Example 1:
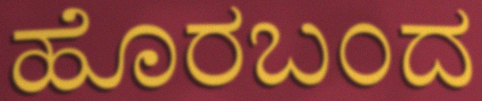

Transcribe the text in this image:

ಹೊರಬಂದ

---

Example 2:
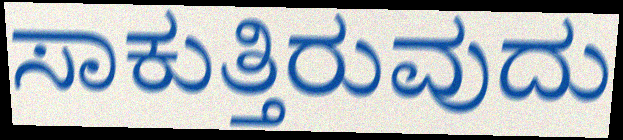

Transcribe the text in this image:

ಸಾಕುತ್ತಿರುವುದು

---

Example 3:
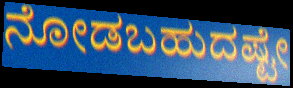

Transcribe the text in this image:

ನೋಡಬಹುದಷ್ಟೇ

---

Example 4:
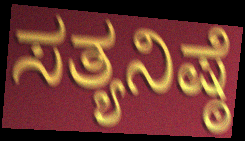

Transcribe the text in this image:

ಸತ್ಯನಿಷ್ಠೆ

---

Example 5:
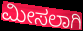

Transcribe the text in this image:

ಮೀಸಲಾಗಿ